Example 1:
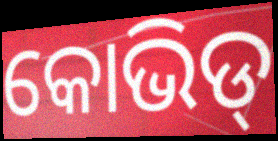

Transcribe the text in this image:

କୋଭିଡ୍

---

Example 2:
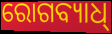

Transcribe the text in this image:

ରୋଗବ୍ୟାଧ୍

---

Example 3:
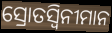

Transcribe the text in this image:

ସ୍ରୋତସ୍ୱିନୀମାନ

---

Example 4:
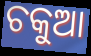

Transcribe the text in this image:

ଚକୁଆ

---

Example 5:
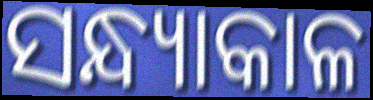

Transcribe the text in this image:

ସନ୍ଧ୍ୟାକାଳ